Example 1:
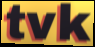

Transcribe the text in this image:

tvk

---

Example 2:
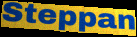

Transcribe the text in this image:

Steppan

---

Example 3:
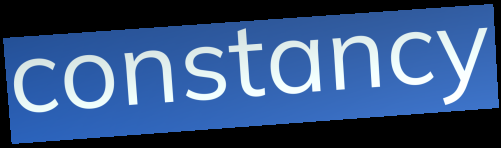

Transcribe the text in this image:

constancy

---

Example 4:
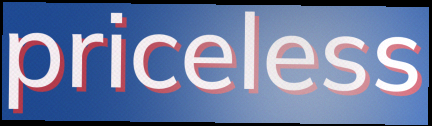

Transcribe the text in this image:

priceless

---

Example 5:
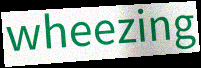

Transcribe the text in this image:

wheezing